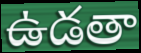
ఉడతా